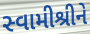
સ્વામીશ્રીને